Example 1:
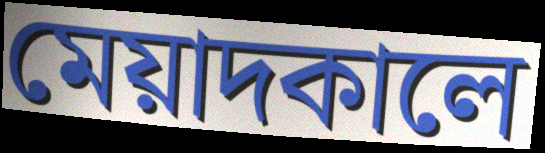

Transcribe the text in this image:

মেয়াদকালে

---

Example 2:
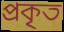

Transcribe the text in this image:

প্রকৃত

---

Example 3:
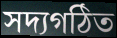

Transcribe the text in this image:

সদ্যগঠিত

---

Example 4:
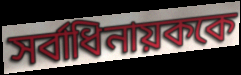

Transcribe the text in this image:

সর্বাধিনায়ককে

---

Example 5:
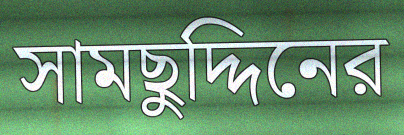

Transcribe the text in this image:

সামছুদ্দিনের